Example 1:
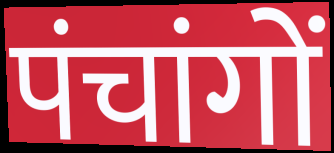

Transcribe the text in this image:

पंचांगों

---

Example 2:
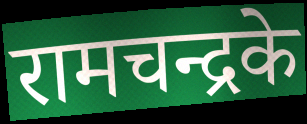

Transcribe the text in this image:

रामचन्द्रके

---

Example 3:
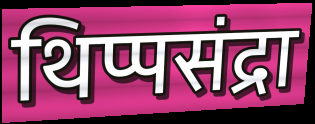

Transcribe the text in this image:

थिप्पसंद्रा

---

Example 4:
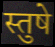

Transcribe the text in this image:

स्तुषे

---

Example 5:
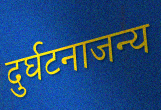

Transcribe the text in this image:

दुर्घटनाजन्य